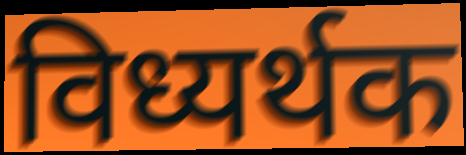
विध्यर्थक